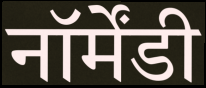
नॉर्मेंडी